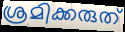
ശ്രമിക്കരുത്